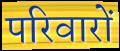
परिवारों